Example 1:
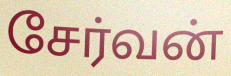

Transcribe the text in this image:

சேர்வன்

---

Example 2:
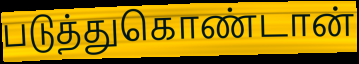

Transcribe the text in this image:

படுத்துகொண்டான்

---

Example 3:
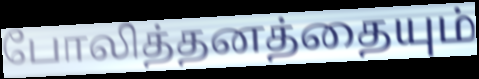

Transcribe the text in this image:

போலித்தனத்தையும்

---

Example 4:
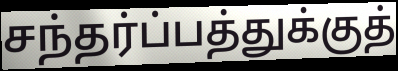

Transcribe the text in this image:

சந்தர்ப்பத்துக்குத்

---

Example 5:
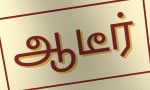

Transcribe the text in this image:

ஆடீர்